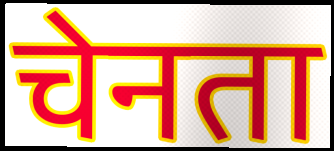
चेनता